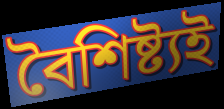
বৈশিষ্ট্যই